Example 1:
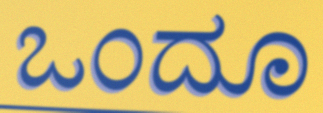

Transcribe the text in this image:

ಒಂದೂ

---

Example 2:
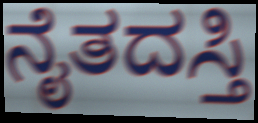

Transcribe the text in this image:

ನೈತದಸ್ತಿ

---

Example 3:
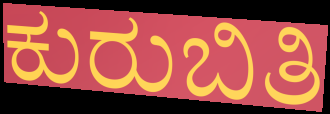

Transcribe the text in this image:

ಕುರುಬಿತಿ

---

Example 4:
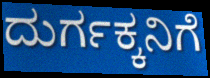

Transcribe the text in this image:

ದುರ್ಗಕ್ಕನಿಗೆ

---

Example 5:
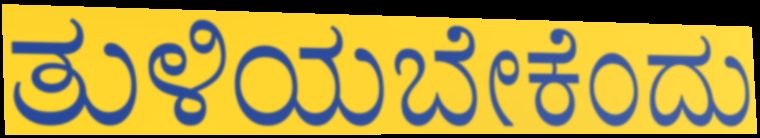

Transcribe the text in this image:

ತುಳಿಯಬೇಕೆಂದು